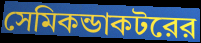
সেমিকন্ডাকটরের